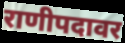
राणीपदावर